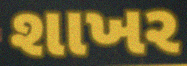
શાખર